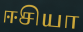
ஈசியா